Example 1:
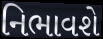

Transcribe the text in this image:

નિભાવશે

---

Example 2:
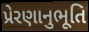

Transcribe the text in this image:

પ્રેરણાનુભૂતિ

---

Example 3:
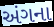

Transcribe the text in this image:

અંગના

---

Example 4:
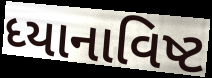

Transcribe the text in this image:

ધ્યાનાવિષ્ટ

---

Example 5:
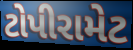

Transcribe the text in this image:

ટોપીરામેટ